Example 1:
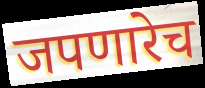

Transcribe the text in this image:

जपणारेच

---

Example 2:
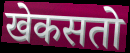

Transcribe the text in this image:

खेकसतो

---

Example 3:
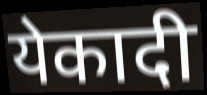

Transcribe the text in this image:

येकादी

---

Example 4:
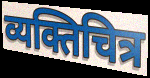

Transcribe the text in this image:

व्यक्तिचित्र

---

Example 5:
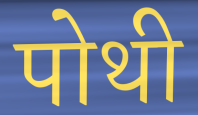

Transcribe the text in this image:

पोथी